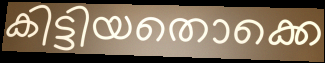
കിട്ടിയതൊക്കെ